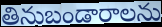
తినుబండారాలను